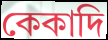
কেকাদি